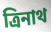
ত্রিনাথ